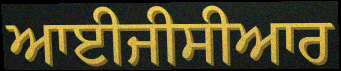
ਆਈਜੀਸੀਆਰ